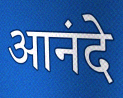
आनंदे